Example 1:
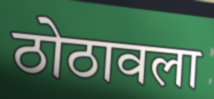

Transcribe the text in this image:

ठोठावला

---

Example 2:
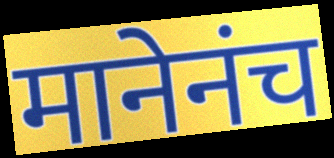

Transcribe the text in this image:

मानेनंच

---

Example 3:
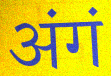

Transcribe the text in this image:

अंगं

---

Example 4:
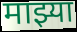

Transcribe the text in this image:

माझ्या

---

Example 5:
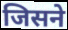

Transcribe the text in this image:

जिसने